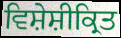
ਵਿਸ਼ੇਸ਼ੀਕ੍ਰਿਤ